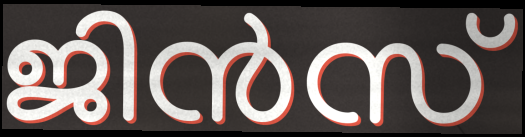
ജിൻസ്